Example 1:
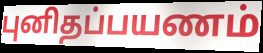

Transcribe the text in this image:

புனிதப்பயணம்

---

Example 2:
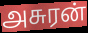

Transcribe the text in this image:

அசுரன்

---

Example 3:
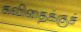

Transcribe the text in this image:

கவிதைக்குச்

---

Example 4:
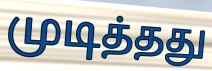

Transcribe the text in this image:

முடித்தது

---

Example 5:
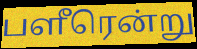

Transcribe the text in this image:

பளீரென்று